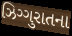
ઝિગ્ગુરાતના